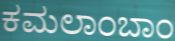
ಕಮಲಾಂಬಾಂ